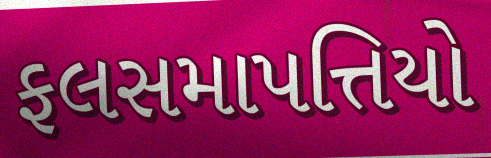
ફલસમાપત્તિયો